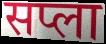
सप्ला